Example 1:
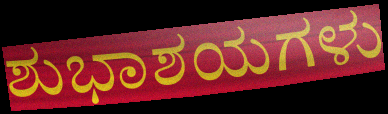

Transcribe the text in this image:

ಶುಭಾಶಯಗಳು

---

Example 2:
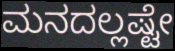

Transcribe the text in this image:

ಮನದಲ್ಲಷ್ಟೇ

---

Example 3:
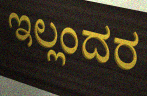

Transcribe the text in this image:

ಇಲ್ಲಂದರ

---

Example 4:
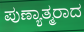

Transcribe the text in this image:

ಪುಣ್ಯಾತ್ಮರಾದ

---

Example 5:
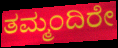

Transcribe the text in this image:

ತಮ್ಮಂದಿರೇ